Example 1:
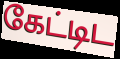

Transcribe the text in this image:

கேட்டிட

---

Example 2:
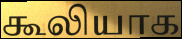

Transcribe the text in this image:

கூலியாக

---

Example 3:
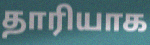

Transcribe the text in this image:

தாரியாக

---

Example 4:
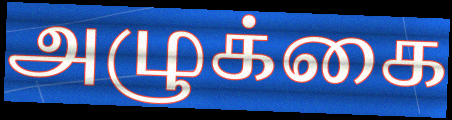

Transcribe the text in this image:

அழுக்கை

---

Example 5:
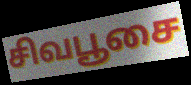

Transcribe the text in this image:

சிவபூசை